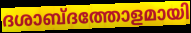
ദശാബ്ദത്തോളമായി